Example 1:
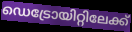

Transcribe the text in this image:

ഡെട്രോയിറ്റിലേക്ക്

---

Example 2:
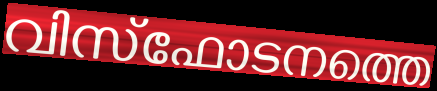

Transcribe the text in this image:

വിസ്ഫോടനത്തെ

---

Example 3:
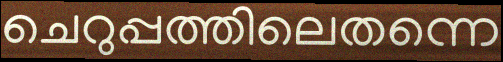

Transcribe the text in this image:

ചെറുപ്പത്തിലെതന്നെ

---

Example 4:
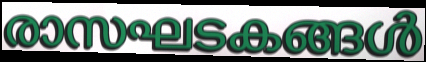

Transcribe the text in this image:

രാസഘടകങ്ങൾ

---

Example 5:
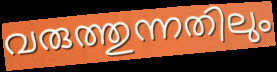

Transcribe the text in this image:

വരുത്തുന്നതിലും